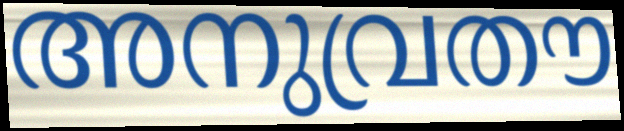
അനുവ്രതൗ